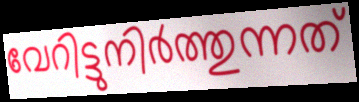
വേറിട്ടുനിർത്തുന്നത്